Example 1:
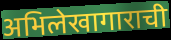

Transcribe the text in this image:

अभिलेखागाराची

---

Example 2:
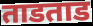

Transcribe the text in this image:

ताडताड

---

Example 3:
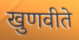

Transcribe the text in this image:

खुणवीते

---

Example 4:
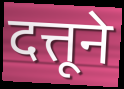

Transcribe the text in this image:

दत्तूने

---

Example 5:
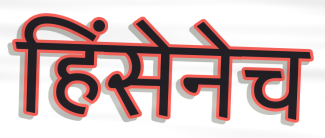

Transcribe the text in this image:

हिंसेनेच